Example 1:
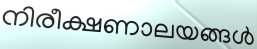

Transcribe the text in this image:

നിരീക്ഷണാലയങ്ങൾ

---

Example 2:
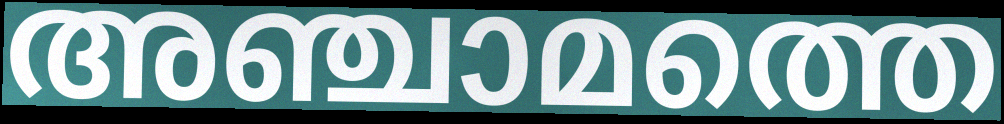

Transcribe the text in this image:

അഞ്ചാമത്തെ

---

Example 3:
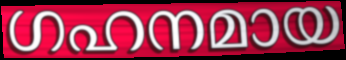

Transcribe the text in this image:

ഗഹനമായ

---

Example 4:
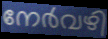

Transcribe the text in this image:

നേർവഴി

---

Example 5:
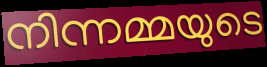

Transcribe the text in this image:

നിന്നമ്മയുടെ